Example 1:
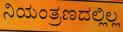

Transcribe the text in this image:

ನಿಯಂತ್ರಣದಲ್ಲಿಲ್ಲ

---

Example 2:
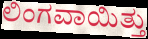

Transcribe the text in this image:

ಲಿಂಗವಾಯಿತ್ತು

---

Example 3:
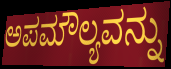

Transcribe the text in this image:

ಅಪಮೌಲ್ಯವನ್ನು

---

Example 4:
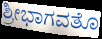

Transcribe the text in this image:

ಶ್ರೀಭಾಗವತೊ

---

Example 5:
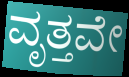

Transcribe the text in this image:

ವೃತ್ತವೇ